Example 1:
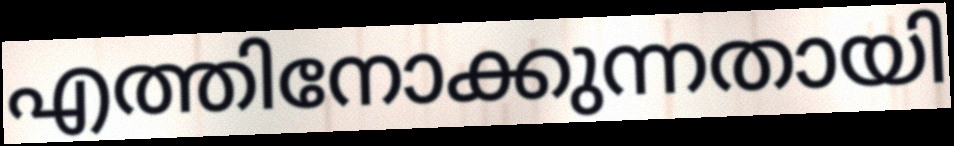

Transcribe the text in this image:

എത്തിനോക്കുന്നതായി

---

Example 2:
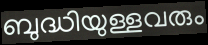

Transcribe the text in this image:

ബുദ്ധിയുള്ളവരും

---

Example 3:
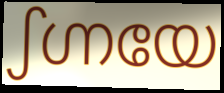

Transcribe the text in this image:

ഽഗ്നയേ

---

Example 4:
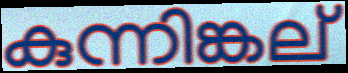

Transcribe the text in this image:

കുന്നിങ്കല്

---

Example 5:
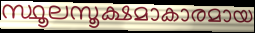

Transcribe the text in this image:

സ്ഥൂലസൂക്ഷമാകാരമായ